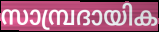
സാമ്പ്രദായിക